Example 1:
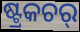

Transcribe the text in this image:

ଷ୍ଟ୍ରକଚର୍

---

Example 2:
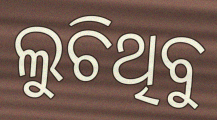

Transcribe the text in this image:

ଲୁଚିଥିବୁ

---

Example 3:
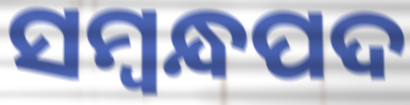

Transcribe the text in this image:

ସମ୍ବନ୍ଧପଦ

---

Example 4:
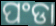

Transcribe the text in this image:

ପଂଡା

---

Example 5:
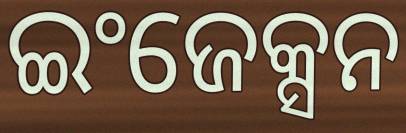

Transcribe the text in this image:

ଇଂଜେକ୍ସନ